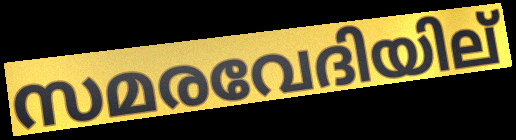
സമരവേദിയില്